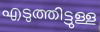
എടുത്തിട്ടുള്ള